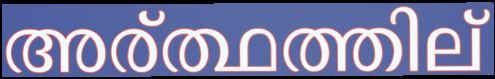
അര്ത്ഥത്തില്